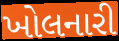
ખોલનારી